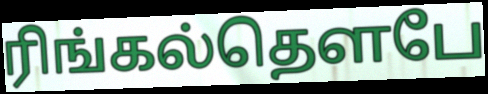
ரிங்கல்தௌபே